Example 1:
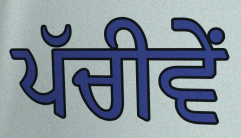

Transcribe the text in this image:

ਪੱਚੀਵੇਂ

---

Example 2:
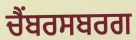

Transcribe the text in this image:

ਚੈਂਬਰਸਬਰਗ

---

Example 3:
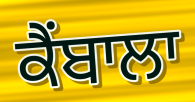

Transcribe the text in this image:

ਕੈਂਬਾਲਾ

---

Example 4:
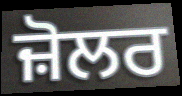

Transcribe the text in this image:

ਜ਼ੋਲਰ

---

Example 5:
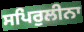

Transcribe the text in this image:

ਸਪਿਰੁਲੀਨਾ